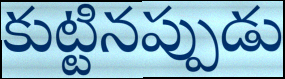
కుట్టినప్పుడు